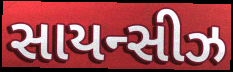
સાયન્સીઝ